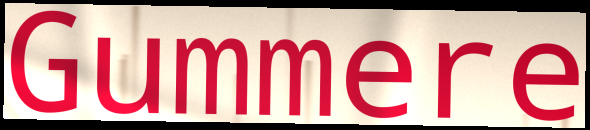
Gummere